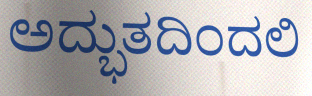
ಅದ್ಭುತದಿಂದಲಿ